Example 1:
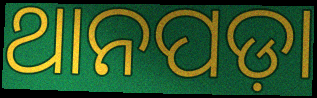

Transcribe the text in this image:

ଥାନପଡ଼ା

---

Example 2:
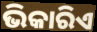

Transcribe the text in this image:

ଭିକାରିଏ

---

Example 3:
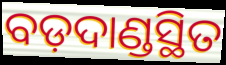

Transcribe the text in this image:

ବଡ଼ଦାଣ୍ଡସ୍ଥିତ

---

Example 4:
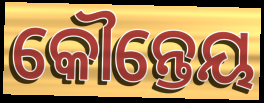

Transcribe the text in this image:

କୌନ୍ତେୟ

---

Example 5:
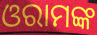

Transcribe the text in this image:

ଓରାମଙ୍କ